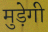
मुड़ेगी